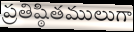
ప్రతిష్ఠితములుగా